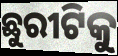
ଛୁରୀଟିକୁ